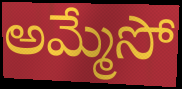
అమ్మేసో